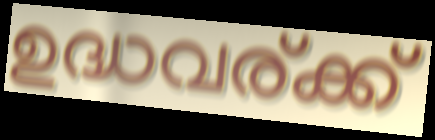
ഉദ്ധവര്ക്ക്